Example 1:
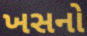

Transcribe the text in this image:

ખસનો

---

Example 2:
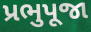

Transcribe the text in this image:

પ્રભુપૂજા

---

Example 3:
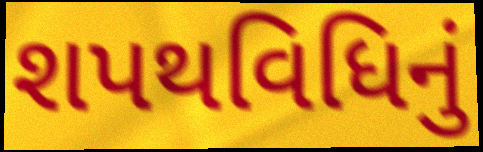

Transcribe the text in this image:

શપથવિધિનું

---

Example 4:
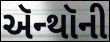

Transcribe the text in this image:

ઍન્થૉની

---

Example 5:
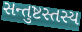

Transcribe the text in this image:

સન્તુષ્ટસ્તસ્ય